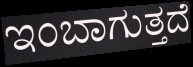
ಇಂಬಾಗುತ್ತದೆ